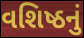
વશિષ્ઠનું